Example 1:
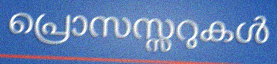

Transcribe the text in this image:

പ്രൊസസ്സറുകൾ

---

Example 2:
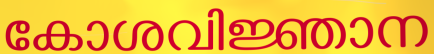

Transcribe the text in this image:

കോശവിജ്ഞാന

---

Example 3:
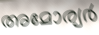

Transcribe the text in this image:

അമോര്യർ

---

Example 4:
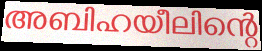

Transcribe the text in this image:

അബിഹയീലിന്റെ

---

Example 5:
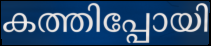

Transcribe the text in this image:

കത്തിപ്പോയി